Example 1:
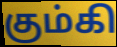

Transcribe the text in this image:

கும்கி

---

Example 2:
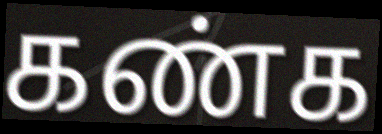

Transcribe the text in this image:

கண்க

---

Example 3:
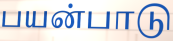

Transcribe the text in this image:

பயன்பாடு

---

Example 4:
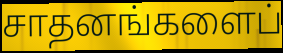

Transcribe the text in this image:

சாதனங்களைப்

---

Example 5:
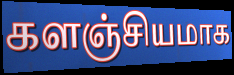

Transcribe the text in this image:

களஞ்சியமாக